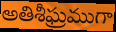
అతిశీఘ్రముగా